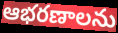
ఆభరణాలను